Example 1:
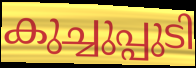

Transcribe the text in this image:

കുച്ചുപ്പുടി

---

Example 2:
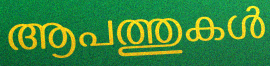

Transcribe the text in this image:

ആപത്തുകൾ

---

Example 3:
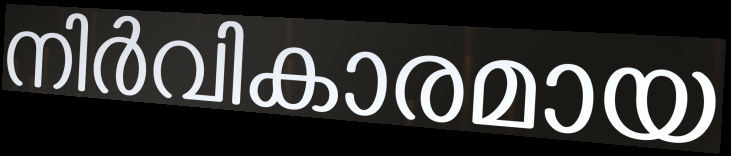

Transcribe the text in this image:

നിർവികാരമായ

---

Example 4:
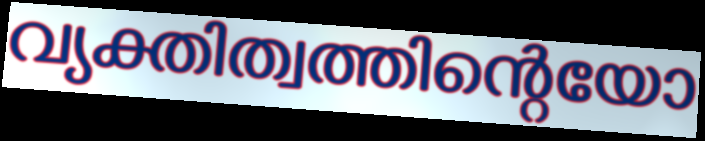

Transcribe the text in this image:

വ്യക്തിത്വത്തിന്റെയോ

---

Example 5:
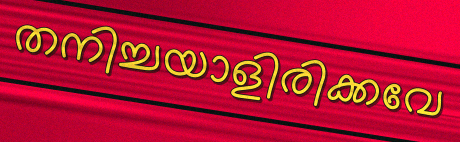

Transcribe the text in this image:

തനിച്ചയാളിരിക്കവേ